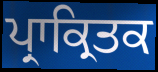
ਪ੍ਰਾਕ੍ਰਿਤਕ